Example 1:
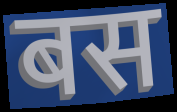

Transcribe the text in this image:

बस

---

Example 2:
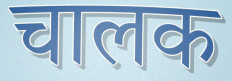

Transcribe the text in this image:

चालक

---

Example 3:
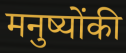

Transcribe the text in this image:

मनुष्योंकी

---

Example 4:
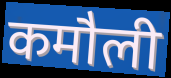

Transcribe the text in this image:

कमौली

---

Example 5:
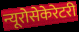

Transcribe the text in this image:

न्यूरोसेकेरेटरी